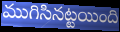
ముగిసినట్టయింది